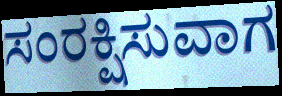
ಸಂರಕ್ಷಿಸುವಾಗ